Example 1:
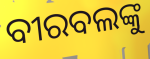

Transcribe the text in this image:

ବୀରବଲଙ୍କୁ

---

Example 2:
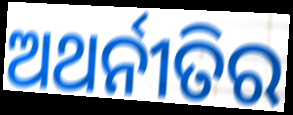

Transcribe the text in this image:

ଅଥର୍ନୀତିର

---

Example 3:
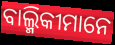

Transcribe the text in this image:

ବାଲ୍ମିକୀମାନେ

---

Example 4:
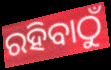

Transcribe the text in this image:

ରହିବାଠୁଁ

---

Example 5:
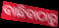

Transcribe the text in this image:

ବାଛିବାଠାରୁ